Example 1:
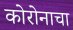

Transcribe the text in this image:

कोरोनाचा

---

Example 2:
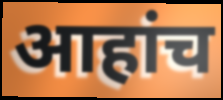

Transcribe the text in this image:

आहांच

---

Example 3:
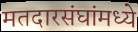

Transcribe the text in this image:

मतदारसंघांमध्ये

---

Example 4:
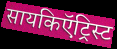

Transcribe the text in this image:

सायकिऍट्रिस्ट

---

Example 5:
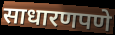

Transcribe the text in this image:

साधारणपणे